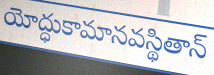
యోద్ధుకామానవస్థితాన్